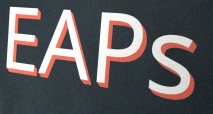
EAPs